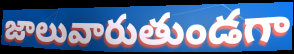
జాలువారుతుండగా